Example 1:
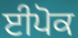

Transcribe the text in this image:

ਈਪੋਕ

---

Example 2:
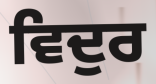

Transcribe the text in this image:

ਵਿਦੁਰ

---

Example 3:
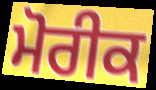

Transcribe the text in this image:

ਮੋਰੀਕ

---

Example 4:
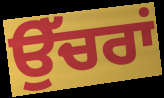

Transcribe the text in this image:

ਉੱਚਰਾਂ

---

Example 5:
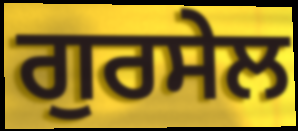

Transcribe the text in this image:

ਗੁਰਸੇਲ